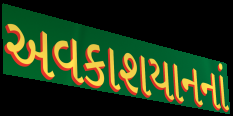
અવકાશયાનનાં